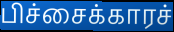
பிச்சைக்காரச்